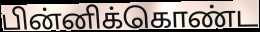
பின்னிக்கொண்ட